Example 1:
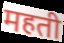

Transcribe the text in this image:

महती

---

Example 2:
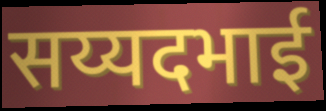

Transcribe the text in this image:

सय्यदभाई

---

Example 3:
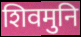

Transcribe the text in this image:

शिवमुनि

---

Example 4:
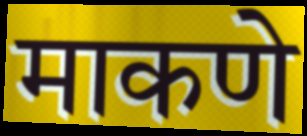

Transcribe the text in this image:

माकणे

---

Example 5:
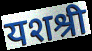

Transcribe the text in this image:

यशश्री